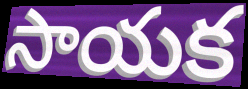
సాయక